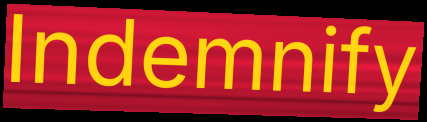
Indemnify